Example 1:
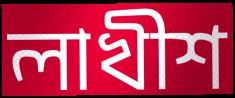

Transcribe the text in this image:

লাখীশ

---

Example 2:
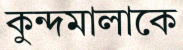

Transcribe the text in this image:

কুন্দমালাকে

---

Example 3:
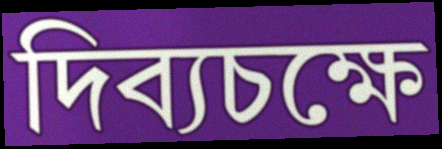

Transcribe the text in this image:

দিব্যচক্ষে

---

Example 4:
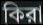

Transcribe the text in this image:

কিরা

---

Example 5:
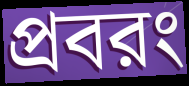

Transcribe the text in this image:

প্রবরং